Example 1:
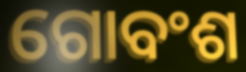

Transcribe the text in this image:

ଗୋବଂଶ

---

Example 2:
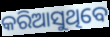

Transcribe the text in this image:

କରିଆସୁଥିବେ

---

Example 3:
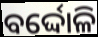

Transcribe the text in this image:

ବର୍ଦ୍ଦୋଳି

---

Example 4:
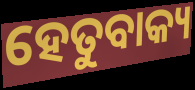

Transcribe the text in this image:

ହେତୁବାକ୍ୟ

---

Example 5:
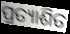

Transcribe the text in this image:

ପ୍ରତ୍ୟାଶିତ